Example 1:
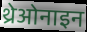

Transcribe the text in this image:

थ्रेओनाइन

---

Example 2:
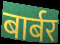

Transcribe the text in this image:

बार्बर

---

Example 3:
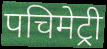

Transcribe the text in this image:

पचिमेट्री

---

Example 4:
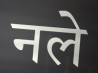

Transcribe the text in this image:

नले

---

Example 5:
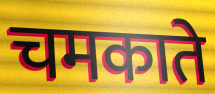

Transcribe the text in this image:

चमकाते